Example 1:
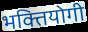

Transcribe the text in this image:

भक्तियोगी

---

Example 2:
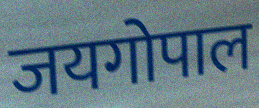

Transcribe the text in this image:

जयगोपाल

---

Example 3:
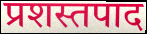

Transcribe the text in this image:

प्रशस्तपाद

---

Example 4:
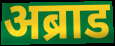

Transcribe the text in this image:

अब्राड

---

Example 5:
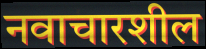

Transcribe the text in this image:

नवाचारशील